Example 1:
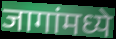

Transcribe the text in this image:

जागांमध्ये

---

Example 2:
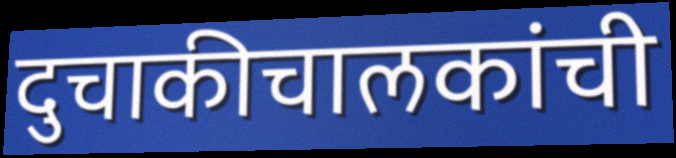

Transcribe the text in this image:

दुचाकीचालकांची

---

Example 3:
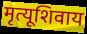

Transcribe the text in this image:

मृत्यूशिवाय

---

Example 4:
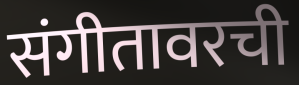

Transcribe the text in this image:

संगीतावरची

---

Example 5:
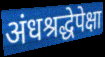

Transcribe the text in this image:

अंधश्रद्धेपेक्षा